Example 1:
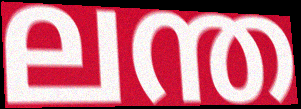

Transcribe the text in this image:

ലന്ത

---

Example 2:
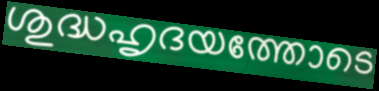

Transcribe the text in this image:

ശുദ്ധഹൃദയത്തോടെ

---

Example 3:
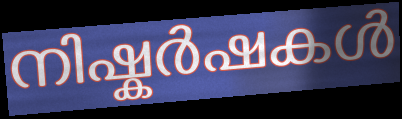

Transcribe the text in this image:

നിഷ്കർഷകൾ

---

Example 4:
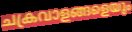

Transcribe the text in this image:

ചക്രവാളങ്ങളെയും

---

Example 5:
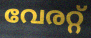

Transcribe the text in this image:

വേരറ്റ്